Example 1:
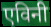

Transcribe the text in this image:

एविनी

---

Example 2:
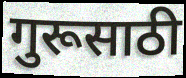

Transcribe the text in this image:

गुरूसाठी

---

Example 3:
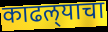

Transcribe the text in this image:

काढल्याचा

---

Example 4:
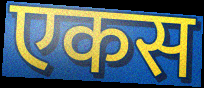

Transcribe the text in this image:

एकस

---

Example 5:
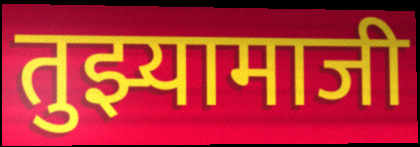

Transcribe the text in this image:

तुझ्यामाजी